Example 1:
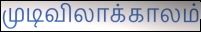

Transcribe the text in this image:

முடிவிலாக்காலம்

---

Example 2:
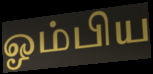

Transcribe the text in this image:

ஓம்பிய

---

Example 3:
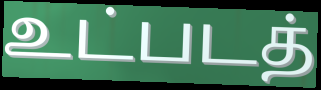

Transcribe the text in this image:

உட்படத்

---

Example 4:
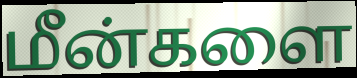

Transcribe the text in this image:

மீன்களை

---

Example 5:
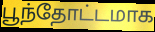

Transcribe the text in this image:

பூந்தோட்டமாக